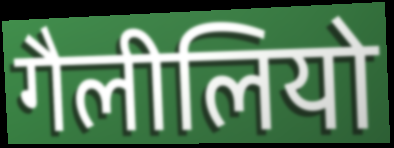
गैलीलियो